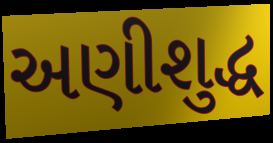
અણીશુદ્ધ